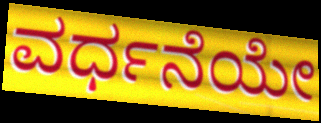
ವರ್ಧನೆಯೇ